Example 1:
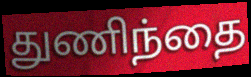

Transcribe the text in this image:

துணிந்தை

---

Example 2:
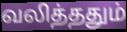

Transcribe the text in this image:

வலித்ததும்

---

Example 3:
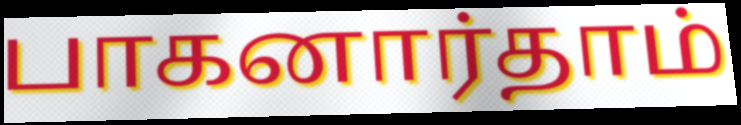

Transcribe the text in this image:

பாகனார்தாம்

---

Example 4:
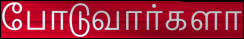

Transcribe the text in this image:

போடுவார்களா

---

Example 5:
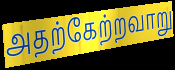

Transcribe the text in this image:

அதற்கேற்றவாறு